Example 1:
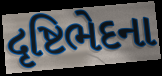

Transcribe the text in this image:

દૃષ્ટિભેદના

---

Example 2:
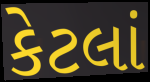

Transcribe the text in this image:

કેટલાં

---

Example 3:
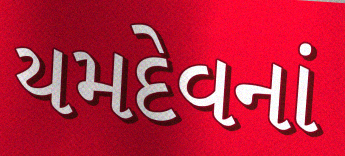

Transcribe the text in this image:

યમદેવનાં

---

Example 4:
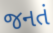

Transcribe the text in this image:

જનતં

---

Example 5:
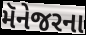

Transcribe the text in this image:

મૅનેજરના